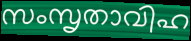
സംസൃതാവിഹ